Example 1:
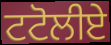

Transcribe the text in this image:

ਟਟੋਲੀਏ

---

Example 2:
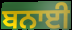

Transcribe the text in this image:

ਬਨਾਈ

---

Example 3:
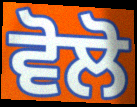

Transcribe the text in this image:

ਵੋਲੋ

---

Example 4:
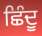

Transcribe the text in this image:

ਛਿੰਦੂ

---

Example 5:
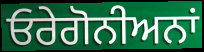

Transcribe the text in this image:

ਓਰੇਗੋਨੀਅਨਾਂ